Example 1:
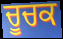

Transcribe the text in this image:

ਚੂਚਕ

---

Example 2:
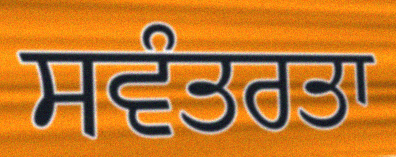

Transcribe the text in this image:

ਸਵੰਤਰਤਾ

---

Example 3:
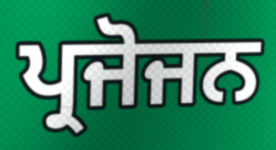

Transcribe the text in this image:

ਪ੍ਰਜੋਜਨ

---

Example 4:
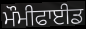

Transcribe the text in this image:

ਮੌਮੀਫਾਈਡ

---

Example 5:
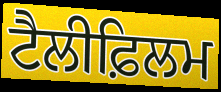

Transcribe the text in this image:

ਟੈਲੀਫ਼ਿਲਮ